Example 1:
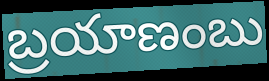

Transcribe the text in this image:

బ్రయాణంబు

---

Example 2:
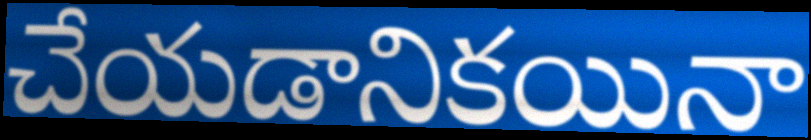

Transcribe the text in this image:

చేయడానికయినా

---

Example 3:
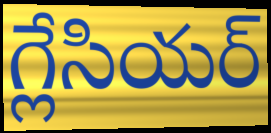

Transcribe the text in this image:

గ్లేసియర్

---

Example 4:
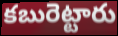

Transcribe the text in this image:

కబురెట్టారు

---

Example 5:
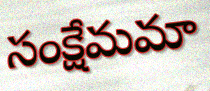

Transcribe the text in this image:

సంక్షేమమా